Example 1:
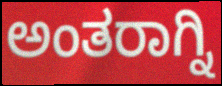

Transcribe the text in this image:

ಅಂತರಾಗ್ನಿ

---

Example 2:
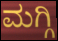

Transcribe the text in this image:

ಮಗ್ಗಿ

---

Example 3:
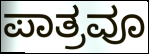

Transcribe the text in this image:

ಪಾತ್ರವೂ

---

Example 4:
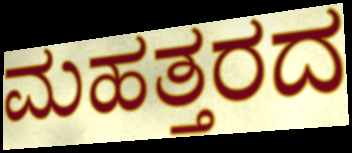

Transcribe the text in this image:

ಮಹತ್ತರದ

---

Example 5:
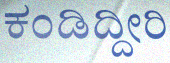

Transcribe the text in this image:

ಕಂಡಿದ್ದೀರಿ